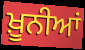
ਖ਼ੂਨੀਆਂ